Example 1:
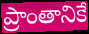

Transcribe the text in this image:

ప్రాంతానికే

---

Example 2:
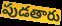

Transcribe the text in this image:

పుడతారు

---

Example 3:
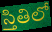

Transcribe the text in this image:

స్తితిలో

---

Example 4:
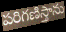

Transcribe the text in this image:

పరిగణిస్తాను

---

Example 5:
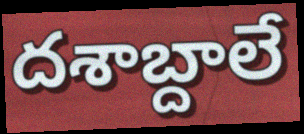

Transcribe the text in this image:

దశాబ్దాలే